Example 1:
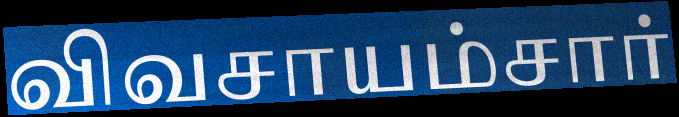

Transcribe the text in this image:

விவசாயம்சார்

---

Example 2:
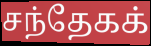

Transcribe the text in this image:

சந்தேகக்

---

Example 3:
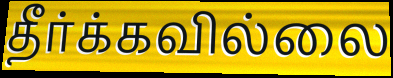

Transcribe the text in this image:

தீர்க்கவில்லை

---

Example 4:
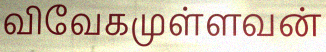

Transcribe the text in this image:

விவேகமுள்ளவன்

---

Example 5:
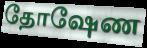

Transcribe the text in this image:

தோஷேண